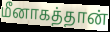
மீனாகத்தான்